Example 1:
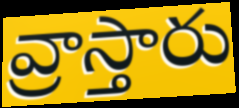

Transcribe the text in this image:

వ్రాస్తారు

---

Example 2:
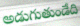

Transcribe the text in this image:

అడుగుతుండేది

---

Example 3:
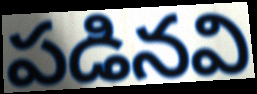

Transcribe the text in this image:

పడినవి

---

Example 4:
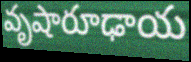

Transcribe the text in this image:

వృషారూఢాయ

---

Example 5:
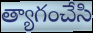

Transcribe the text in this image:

త్యాగంచేసి